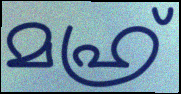
മഹ്ര്